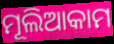
ମୂଲିଆକାମ